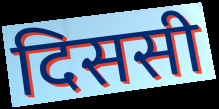
दिससी